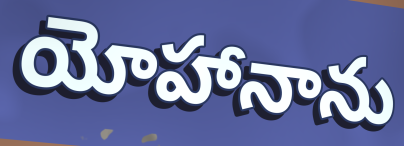
యోహానాను